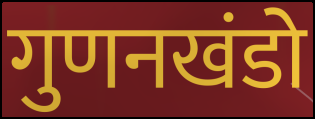
गुणनखंडो